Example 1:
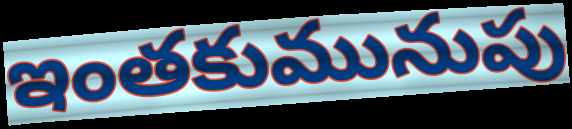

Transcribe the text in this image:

ఇంతకుమునుపు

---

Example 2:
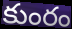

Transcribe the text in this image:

కుంరం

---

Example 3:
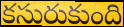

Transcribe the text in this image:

కసురుకుంది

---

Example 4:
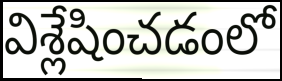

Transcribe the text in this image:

విశ్లేషించడంలో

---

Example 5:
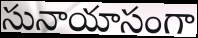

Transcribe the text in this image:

సునాయాసంగా